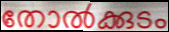
തോൽക്കുടം